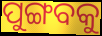
ପୁଙ୍ଗବକୁ